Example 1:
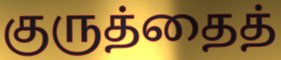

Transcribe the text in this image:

குருத்தைத்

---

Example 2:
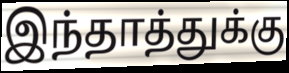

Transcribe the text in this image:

இந்தாத்துக்கு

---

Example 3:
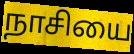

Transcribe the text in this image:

நாசியை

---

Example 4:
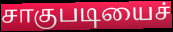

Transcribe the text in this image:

சாகுபடியைச்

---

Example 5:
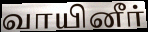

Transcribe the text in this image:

வாயினீர்